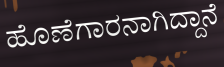
ಹೊಣೆಗಾರನಾಗಿದ್ದಾನೆ